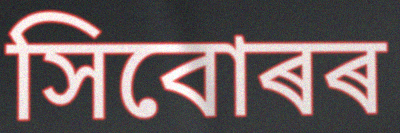
সিবোৰৰ